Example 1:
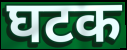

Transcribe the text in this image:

घटक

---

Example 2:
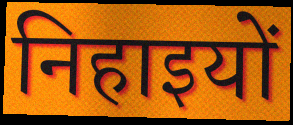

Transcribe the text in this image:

निहाइयों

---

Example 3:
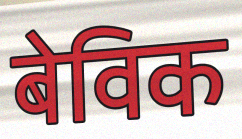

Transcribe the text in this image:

बेविक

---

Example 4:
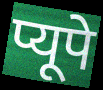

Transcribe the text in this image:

प्यूपे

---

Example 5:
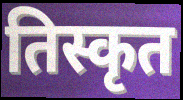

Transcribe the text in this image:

तिस्कृत